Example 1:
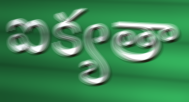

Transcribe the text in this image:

ఐక్యతా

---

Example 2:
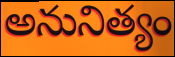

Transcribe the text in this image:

అనునిత్యం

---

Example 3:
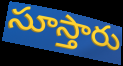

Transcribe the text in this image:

సూస్తారు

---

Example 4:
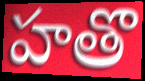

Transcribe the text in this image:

హతొ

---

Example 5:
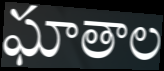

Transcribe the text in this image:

ఘాతాల